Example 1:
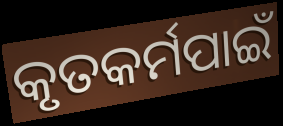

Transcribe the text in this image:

କୃତକର୍ମପାଇଁ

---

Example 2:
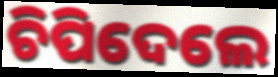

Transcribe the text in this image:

ଚିପିଦେଲେ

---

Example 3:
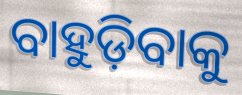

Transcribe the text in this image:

ବାହୁଡ଼ିବାକୁ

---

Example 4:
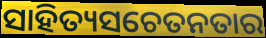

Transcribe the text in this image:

ସାହିତ୍ୟସଚେତନତାର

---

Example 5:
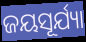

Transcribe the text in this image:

ଜୟସୂର୍ଯ୍ୟା